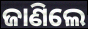
ଜାଣିଲେ